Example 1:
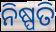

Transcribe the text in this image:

ନିଷ୍ପତି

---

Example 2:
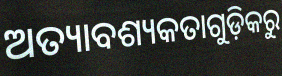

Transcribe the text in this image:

ଅତ୍ୟାବଶ୍ୟକତାଗୁଡ଼ିକରୁ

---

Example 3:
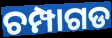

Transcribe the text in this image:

ଚମ୍ପାଗଡ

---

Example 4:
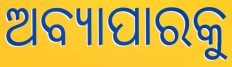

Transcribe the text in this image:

ଅବ୍ୟାପାରକୁ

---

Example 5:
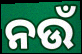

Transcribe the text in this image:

ନଉଁ